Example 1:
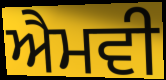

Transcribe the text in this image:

ਐਮਵੀ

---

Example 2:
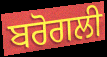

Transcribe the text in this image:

ਬਰੋਗਲੀ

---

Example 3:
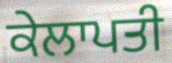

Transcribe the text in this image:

ਕੇਲਾਪਤੀ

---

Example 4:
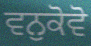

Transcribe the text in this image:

ਵਨੁਕੋਵੋ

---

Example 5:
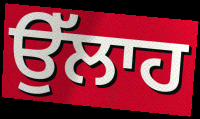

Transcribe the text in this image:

ਉੱਲਾਹ